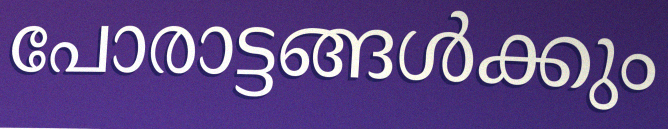
പോരാട്ടങ്ങൾക്കും